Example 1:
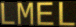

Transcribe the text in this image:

LMEL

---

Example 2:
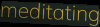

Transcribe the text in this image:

meditating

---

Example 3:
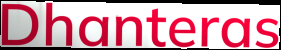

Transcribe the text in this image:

Dhanteras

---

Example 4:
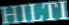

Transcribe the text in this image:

HILTI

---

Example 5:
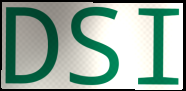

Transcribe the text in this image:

DSI